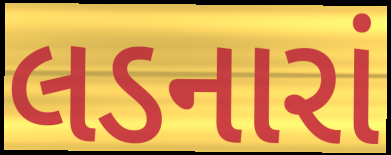
લડનારાં